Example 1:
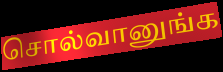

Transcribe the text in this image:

சொல்வானுங்க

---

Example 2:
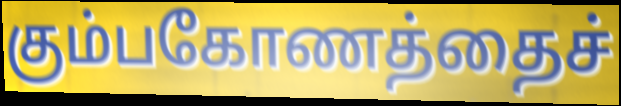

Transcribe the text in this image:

கும்பகோணத்தைச்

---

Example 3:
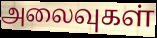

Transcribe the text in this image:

அலைவுகள்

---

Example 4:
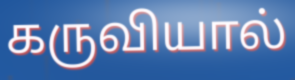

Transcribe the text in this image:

கருவியால்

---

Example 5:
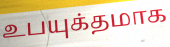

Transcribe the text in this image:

உபயுக்தமாக